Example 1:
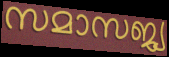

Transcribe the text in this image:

സമാസജ്യ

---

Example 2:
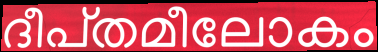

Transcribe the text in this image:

ദീപ്‌തമീലോകം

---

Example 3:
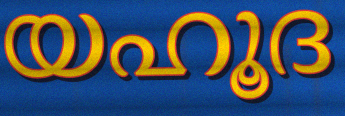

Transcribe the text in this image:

യഹൂദ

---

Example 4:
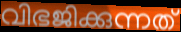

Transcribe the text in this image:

വിഭജിക്കുന്നത്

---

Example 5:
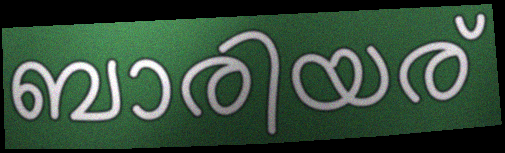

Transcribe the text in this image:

ബാരിയര്